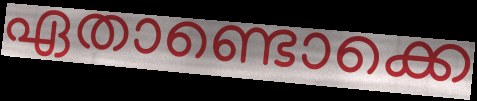
ഏതാണ്ടൊക്കെ